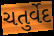
ચતુર્વેદ